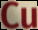
Cu